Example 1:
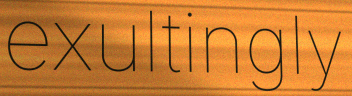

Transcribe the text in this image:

exultingly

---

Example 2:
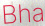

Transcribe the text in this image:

Bha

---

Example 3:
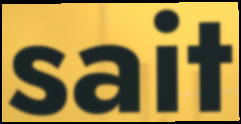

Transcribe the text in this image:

sait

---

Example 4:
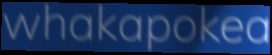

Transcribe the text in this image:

whakapokea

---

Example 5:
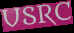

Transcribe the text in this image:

USRC